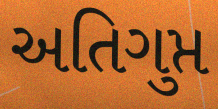
અતિગુપ્ત